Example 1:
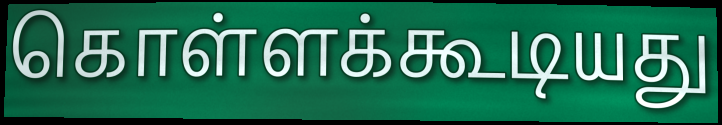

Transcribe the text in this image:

கொள்ளக்கூடியது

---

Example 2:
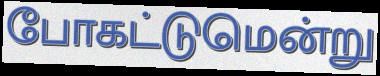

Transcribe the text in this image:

போகட்டுமென்று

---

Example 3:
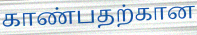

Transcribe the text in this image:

காண்பதற்கான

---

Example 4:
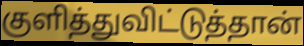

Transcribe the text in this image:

குளித்துவிட்டுத்தான்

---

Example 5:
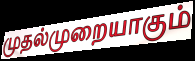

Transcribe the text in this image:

முதல்முறையாகும்